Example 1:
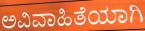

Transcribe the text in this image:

ಅವಿವಾಹಿತೆಯಾಗಿ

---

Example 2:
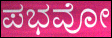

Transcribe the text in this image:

ಪಭವೋ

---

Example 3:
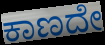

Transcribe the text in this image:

ಕಾಣದೇ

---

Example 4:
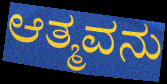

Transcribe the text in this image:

ಆತ್ಮವನು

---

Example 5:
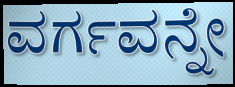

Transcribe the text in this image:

ವರ್ಗವನ್ನೇ